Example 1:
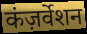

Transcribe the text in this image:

कंज़र्वेशन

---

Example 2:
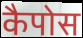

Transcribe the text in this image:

कैपोस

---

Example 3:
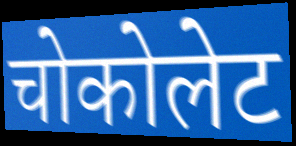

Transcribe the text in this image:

चोकोलेट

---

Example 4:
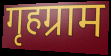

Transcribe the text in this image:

गृहग्राम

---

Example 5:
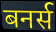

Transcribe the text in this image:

बनर्स